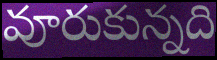
వూరుకున్నది